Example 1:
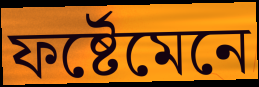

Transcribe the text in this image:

ফৰ্ষ্টেমেনে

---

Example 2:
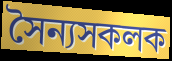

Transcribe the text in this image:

সৈন্যসকলক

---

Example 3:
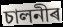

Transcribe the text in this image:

চালনীৰ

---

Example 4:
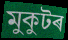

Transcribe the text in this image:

মুকুটৰ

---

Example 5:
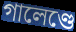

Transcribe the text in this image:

গালেণ্ডে